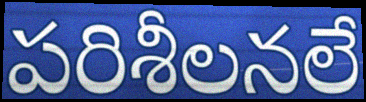
పరిశీలనలే